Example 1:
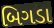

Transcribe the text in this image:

બિગડા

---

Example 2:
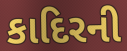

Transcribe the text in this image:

કાદિરની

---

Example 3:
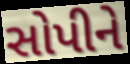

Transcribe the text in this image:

સોપીને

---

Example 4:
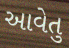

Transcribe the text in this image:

આવેતુ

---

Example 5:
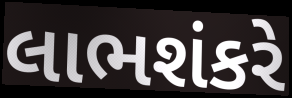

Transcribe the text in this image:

લાભશંકરે